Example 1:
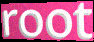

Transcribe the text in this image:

root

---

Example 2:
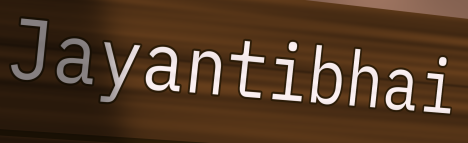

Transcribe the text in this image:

Jayantibhai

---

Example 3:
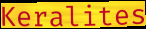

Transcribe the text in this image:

Keralites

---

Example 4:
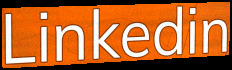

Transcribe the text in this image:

Linkedin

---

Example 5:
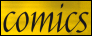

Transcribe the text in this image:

comics